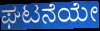
ಘಟನೆಯೇ